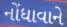
નોંધાવાને